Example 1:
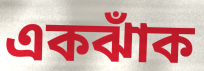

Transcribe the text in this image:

একঝাঁক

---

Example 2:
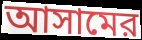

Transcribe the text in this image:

আসামের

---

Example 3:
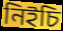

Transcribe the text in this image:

নিইচি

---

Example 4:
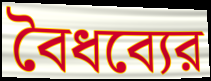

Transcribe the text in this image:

বৈধব্যের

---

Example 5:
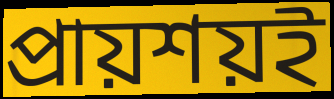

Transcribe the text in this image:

প্রায়শয়ই